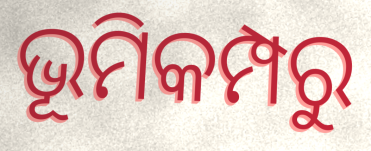
ଭୂମିକମ୍ପରୁ